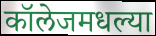
कॉलेजमधल्या